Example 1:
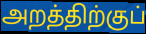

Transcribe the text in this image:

அறத்திற்குப்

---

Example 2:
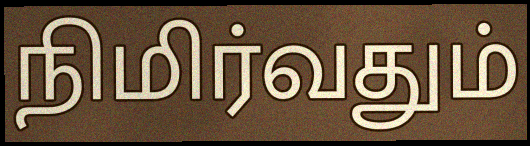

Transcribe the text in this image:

நிமிர்வதும்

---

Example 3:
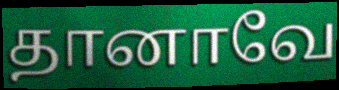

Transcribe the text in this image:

தானாவே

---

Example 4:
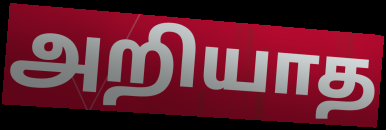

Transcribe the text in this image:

அறியாத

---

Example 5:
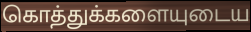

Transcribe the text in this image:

கொத்துக்களையுடைய